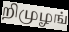
றிமுழங்